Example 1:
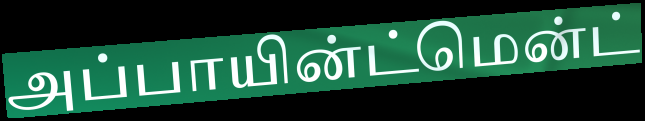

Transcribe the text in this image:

அப்பாயின்ட்மென்ட்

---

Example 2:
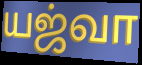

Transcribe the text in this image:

யஜ்வா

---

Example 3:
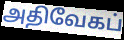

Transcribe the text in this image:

அதிவேகப்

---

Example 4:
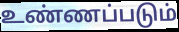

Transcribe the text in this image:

உண்ணப்படும்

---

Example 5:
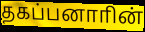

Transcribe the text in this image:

தகப்பனாரின்